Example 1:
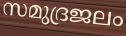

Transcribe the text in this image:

സമുദ്രജലം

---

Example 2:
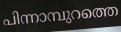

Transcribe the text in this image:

പിന്നാമ്പുറത്തെ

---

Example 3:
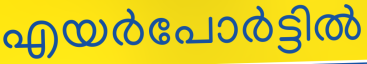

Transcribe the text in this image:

എയർപോർട്ടിൽ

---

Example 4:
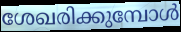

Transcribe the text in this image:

ശേഖരിക്കുമ്പോൾ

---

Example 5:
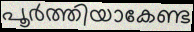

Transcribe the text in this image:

പൂർത്തിയാകേണ്ട